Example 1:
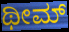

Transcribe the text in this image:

ಥೀಮ್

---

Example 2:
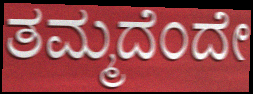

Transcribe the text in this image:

ತಮ್ಮದೆಂದೇ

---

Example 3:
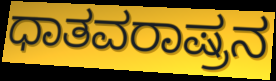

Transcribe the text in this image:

ಧಾತವರಾಷ್ರನ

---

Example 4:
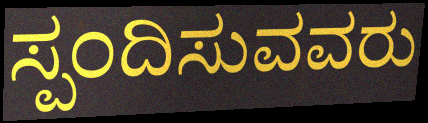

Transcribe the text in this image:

ಸ್ಪಂದಿಸುವವರು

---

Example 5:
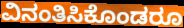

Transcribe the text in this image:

ವಿನಂತಿಸಿಕೊಂಡರೂ